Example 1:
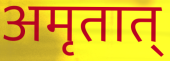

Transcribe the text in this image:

अमृतात्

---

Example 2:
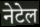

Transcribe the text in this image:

नेटेल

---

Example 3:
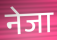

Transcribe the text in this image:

नेजा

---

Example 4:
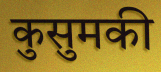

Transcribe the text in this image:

कुसुमकी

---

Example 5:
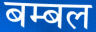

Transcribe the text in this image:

बम्बल